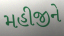
મહીજીને